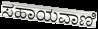
ಸಹಾಯವಾಣಿ